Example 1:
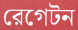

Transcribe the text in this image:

রেগেটন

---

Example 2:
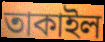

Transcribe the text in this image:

তাকাইল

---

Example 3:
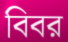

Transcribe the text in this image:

বিবর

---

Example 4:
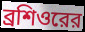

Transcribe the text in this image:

ব্রশিওরের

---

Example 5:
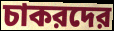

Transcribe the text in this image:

চাকরদের